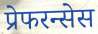
प्रेफरन्सेस